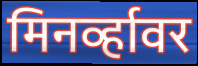
मिनर्व्हावर